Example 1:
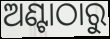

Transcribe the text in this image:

ଅଣ୍ଟାଠାରୁ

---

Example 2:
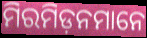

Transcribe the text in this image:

ମିରମିଡ଼ନମାନେ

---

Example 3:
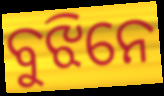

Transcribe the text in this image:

ବୁଝିନେ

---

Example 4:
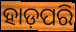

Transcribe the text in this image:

ହାଡ଼ପରି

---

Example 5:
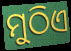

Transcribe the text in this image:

ମୁଠିଏ